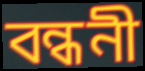
বন্ধনী